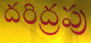
దరిద్రపు